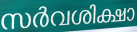
സർവശിക്ഷാ